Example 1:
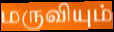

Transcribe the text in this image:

மருவியும்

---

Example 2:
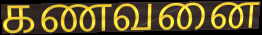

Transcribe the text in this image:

கணவனை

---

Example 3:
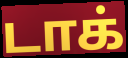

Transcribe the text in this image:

டாக்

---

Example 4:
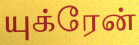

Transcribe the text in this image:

யுக்ரேன்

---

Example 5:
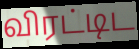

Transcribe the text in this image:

விரட்டிட